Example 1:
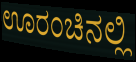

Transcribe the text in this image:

ಊರಂಚಿನಲ್ಲಿ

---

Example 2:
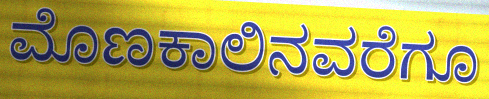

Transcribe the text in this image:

ಮೊಣಕಾಲಿನವರೆಗೂ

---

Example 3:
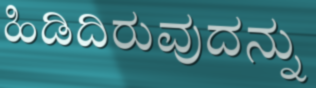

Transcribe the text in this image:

ಹಿಡಿದಿರುವುದನ್ನು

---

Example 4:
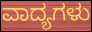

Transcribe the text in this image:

ವಾದ್ಯಗಳು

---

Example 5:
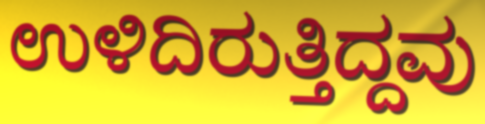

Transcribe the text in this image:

ಉಳಿದಿರುತ್ತಿದ್ದವು